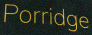
Porridge